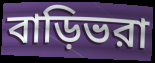
বাড়িভরা